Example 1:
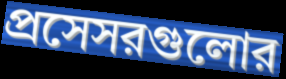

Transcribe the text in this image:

প্রসেসরগুলোর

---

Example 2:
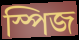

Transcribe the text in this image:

স্পিজ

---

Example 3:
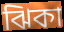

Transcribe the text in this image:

ঝিকা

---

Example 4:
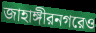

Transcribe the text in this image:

জাহাঙ্গীরনগরেও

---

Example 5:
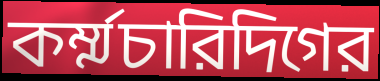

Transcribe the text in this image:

কর্ম্মচারিদিগের